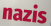
nazis